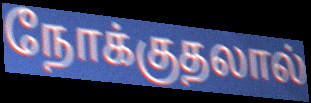
நோக்குதலால்